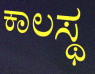
ಕಾಲಸ್ಥ